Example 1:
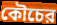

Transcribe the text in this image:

কৌচের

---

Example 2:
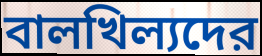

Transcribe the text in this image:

বালখিল্যদের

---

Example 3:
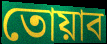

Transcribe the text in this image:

তোয়াব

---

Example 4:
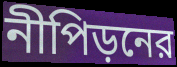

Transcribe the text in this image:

নীপিড়নের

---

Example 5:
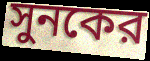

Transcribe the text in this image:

সুনকের